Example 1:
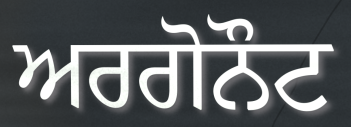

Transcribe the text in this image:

ਅਰਗੋਨੌਟ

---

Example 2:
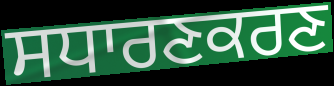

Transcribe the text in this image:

ਸਧਾਰਣਕਰਣ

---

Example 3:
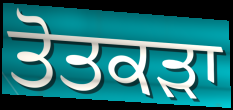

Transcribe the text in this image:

ਤੋਤਕੜਾ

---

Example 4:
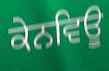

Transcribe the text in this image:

ਕੇਨਵਿਊ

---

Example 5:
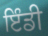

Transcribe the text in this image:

ਇੰਡੀ